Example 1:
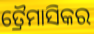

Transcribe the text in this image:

ତ୍ରୈମାସିକର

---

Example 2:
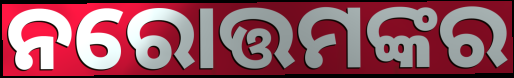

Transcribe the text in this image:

ନରୋତ୍ତମଙ୍କର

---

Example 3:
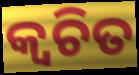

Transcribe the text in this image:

କ୍ୱଚିତ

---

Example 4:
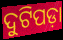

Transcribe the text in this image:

ଦୁଟିପଡ଼ା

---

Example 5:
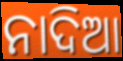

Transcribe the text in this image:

ନାଦିଆ